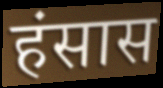
हंसास